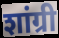
शांग्री